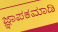
ಜ್ಞಾಪಕಮಾಡಿ